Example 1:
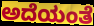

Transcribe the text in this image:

ಅದೆಯಂತೆ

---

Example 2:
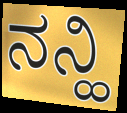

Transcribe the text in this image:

ನನ್ಹಿ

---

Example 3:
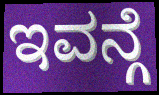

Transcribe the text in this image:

ಇವನ್ಗೆ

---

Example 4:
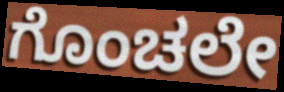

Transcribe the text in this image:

ಗೊಂಚಲೇ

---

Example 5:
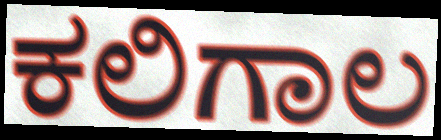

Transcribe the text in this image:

ಕಲಿಗಾಲ